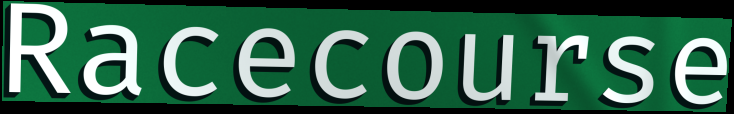
Racecourse